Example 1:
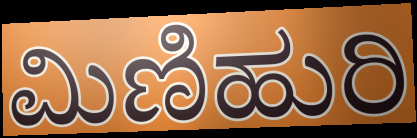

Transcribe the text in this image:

ಮಿಣಿಹುರಿ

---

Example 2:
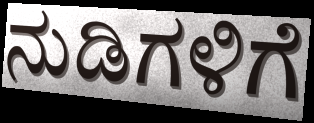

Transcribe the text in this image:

ನುಡಿಗಳಿಗೆ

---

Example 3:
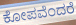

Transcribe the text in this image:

ಕೋಪವೆಂದರೆ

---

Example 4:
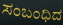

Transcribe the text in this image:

ಸಂಬಂಧಿದ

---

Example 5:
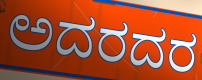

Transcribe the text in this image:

ಅದರದರ